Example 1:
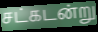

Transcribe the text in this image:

சட்கடன்று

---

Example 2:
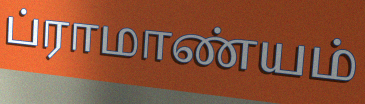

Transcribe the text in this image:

ப்ராமாண்யம்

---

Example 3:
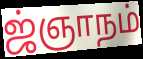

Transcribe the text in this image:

ஜ்ஞாநம்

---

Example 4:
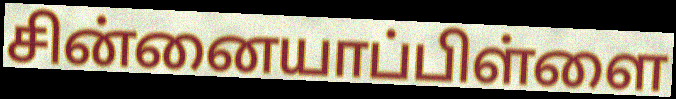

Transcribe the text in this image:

சின்னையாப்பிள்ளை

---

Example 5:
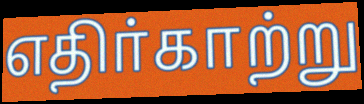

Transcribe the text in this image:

எதிர்காற்று